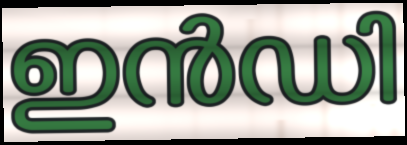
ഇൻഡി